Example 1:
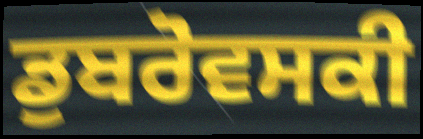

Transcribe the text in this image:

ਡੁਬਰੋਵਸਕੀ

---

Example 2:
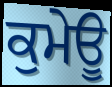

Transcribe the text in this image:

ਕੁਮੇਊ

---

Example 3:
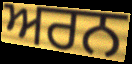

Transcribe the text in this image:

ਅਰਨ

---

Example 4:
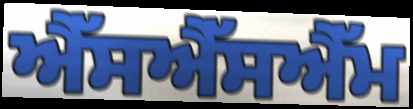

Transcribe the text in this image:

ਐੱਸਐੱਸਐੱਮ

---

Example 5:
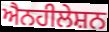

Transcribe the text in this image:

ਐਨਹੀਲੇਸ਼ਨ